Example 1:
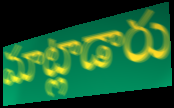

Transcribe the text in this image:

మాట్లాడారు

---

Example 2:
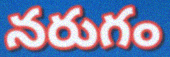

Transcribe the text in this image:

నరుగం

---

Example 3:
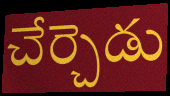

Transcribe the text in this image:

చేర్చెడు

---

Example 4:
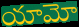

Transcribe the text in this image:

యామో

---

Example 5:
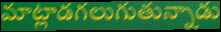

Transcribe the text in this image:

మాట్లాడగలుగుతున్నాడు